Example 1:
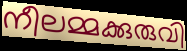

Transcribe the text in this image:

നീലമ്മക്കുരുവി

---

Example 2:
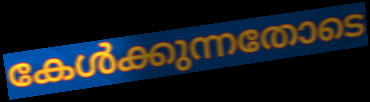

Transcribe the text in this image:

കേൾക്കുന്നതോടെ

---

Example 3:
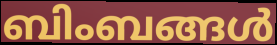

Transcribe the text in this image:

ബിംബങ്ങൾ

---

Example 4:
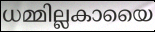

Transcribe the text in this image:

ധമ്മില്ലകായൈ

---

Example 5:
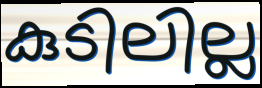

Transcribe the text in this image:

കുടിലില്ല